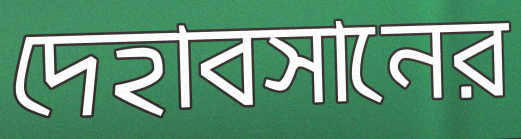
দেহাবসানের